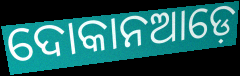
ଦୋକାନଆଡ଼େ